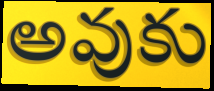
అవుకు